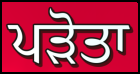
ਪੜੋਤਾ